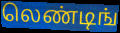
லெண்டிங்